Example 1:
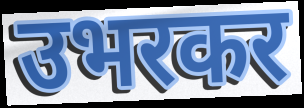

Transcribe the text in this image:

उभरकर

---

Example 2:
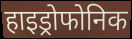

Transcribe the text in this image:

हाइड्रोफोनिक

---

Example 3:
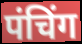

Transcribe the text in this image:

पंचिंग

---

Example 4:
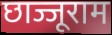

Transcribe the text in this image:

छाज्जूराम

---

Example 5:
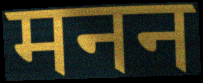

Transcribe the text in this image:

मनन